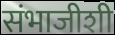
संभाजीशी